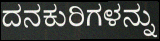
ದನಕುರಿಗಳನ್ನು